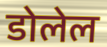
डोलेल